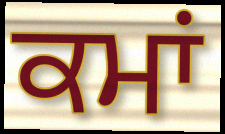
ਕਮਾਂ